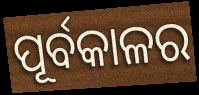
ପୂର୍ବକାଳର